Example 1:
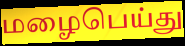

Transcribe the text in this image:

மழைபெய்து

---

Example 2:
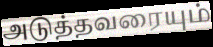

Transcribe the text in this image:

அடுத்தவரையும்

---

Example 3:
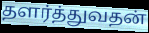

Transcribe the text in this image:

தளர்த்துவதன்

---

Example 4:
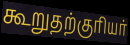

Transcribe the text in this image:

கூறுதற்குரியர்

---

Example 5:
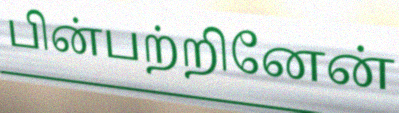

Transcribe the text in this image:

பின்பற்றினேன்